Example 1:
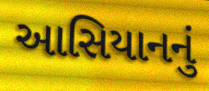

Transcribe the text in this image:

આસિયાનનું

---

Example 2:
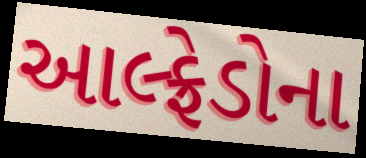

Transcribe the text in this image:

આલ્ફ્રેડોના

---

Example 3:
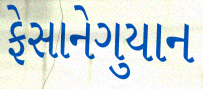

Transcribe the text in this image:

ફેસાનેગુયાન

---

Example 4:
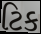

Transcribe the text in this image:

ટિક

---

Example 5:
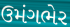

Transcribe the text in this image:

ઉમંગભેર